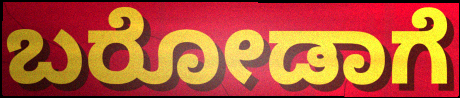
ಬರೋಡಾಗೆ